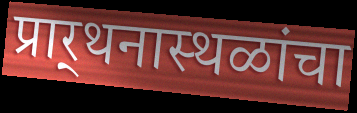
प्रार्थनास्थळांचा